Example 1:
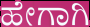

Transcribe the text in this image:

ಹೇಗಾಗಿ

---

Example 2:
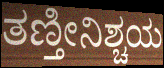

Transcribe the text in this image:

ತಣ್ತೀನಿಶ್ಚಯ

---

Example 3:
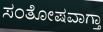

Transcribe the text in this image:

ಸಂತೋಷವಾಗ್ತಾ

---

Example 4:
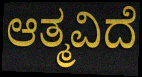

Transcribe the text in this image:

ಆತ್ಮವಿದೆ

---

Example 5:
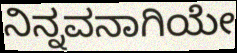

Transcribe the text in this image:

ನಿನ್ನವನಾಗಿಯೇ